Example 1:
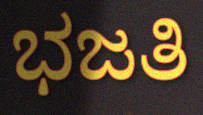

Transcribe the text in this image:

ಭಜತಿ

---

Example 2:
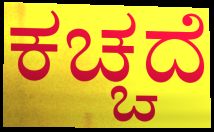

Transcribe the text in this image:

ಕಚ್ಚದೆ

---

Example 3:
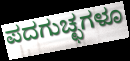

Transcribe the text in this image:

ಪದಗುಚ್ಛಗಳೂ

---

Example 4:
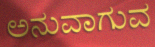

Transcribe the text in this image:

ಅನುವಾಗುವ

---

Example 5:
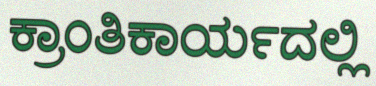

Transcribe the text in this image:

ಕ್ರಾಂತಿಕಾರ್ಯದಲ್ಲಿ